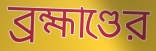
ব্রহ্মাণ্ডের